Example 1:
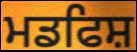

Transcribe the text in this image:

ਮਡਫਿਸ਼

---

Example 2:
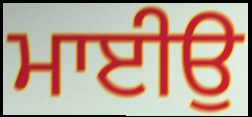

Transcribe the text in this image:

ਮਾਈਉ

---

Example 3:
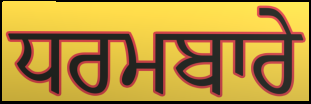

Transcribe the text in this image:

ਧਰਮਬਾਰੇ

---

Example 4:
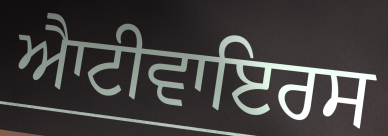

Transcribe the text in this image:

ਐਾਟੀਵਾਇਰਸ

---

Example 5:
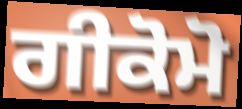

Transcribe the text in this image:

ਗੀਕੋਮੋ